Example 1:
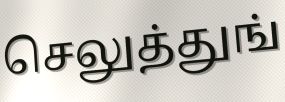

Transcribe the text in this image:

செலுத்துங்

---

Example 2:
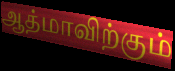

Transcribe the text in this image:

ஆத்மாவிற்கும்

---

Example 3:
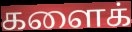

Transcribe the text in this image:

களைக்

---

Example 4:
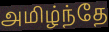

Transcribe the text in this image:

அமிழ்ந்தே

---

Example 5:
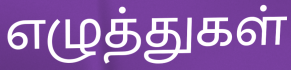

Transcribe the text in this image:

எழுத்துகள்